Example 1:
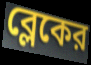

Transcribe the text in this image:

ব্লেকের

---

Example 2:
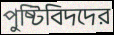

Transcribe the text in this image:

পুষ্টিবিদদের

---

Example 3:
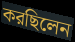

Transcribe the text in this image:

করছিলেন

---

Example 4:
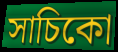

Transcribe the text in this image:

সাচিকো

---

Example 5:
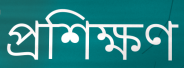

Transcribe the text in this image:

প্রশিক্ষণ